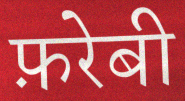
फ़रेबी